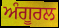
ਅੰਗੂਰਲ